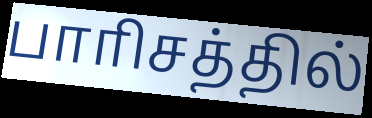
பாரிசத்தில்